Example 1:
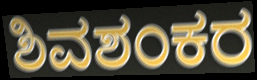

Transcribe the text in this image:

ಶಿವಶಂಕರ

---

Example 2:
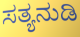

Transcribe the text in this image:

ಸತ್ಯನುಡಿ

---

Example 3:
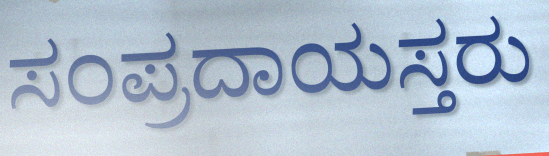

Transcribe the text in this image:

ಸಂಪ್ರದಾಯಸ್ತರು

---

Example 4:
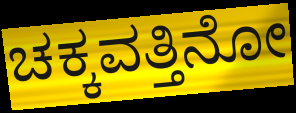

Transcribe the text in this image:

ಚಕ್ಕವತ್ತಿನೋ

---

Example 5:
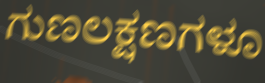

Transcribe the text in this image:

ಗುಣಲಕ್ಷಣಗಳೂ